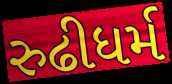
રુઢીધર્મ